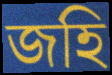
জহি